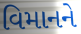
વિમાનને